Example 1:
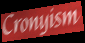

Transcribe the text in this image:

Cronyism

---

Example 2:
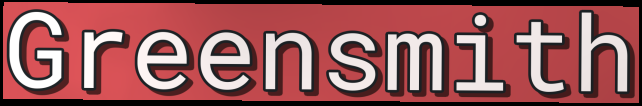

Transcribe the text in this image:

Greensmith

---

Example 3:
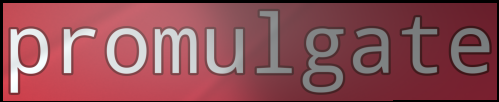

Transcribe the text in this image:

promulgate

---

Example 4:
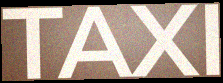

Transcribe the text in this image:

TAXI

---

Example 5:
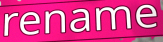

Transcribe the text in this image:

rename